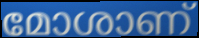
മോശാണ്